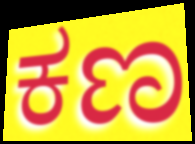
ಕಣ